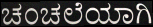
ಚಂಚಲೆಯಾಗಿ